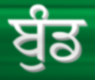
ਬੁੰਡ